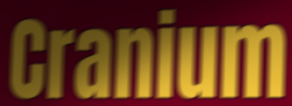
Cranium